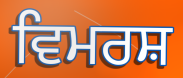
ਵਿਮਰਸ਼